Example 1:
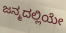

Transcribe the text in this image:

ಜನ್ಮದಲ್ಲಿಯೇ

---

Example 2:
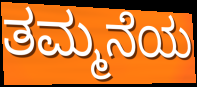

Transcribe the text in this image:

ತಮ್ಮನೆಯ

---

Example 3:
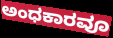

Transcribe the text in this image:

ಅಂಧಕಾರವೂ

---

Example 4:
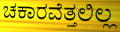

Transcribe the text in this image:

ಚಕಾರವೆತ್ತಲಿಲ್ಲ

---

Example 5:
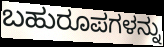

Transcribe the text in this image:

ಬಹುರೂಪಗಳನ್ನು